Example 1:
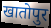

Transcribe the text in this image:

खातोपुर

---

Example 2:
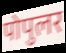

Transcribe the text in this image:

पोपुलर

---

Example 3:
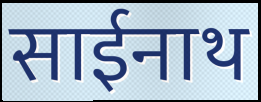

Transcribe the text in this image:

साईनाथ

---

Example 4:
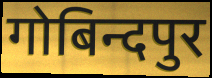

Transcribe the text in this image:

गोबिन्दपुर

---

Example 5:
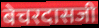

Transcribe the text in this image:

बेचरदासजी